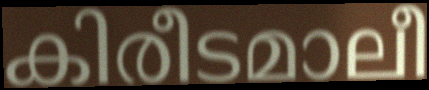
കിരീടമാലീ